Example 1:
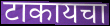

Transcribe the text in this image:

टाकायचा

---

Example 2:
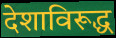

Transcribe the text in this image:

देशाविरूद्ध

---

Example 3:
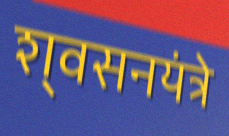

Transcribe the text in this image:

श्वसनयंत्रे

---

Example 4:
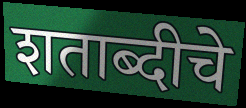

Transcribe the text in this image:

शताब्दीचे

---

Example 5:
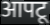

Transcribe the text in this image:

आपटू